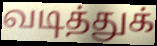
வடித்துக்